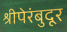
श्रीपेरंबुदूर